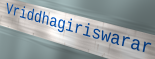
Vriddhagiriswarar